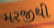
મરજીથી